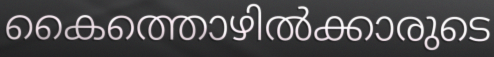
കൈത്തൊഴിൽക്കാരുടെ